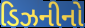
ડિઝનીનો